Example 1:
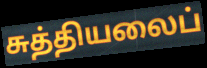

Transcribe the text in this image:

சுத்தியலைப்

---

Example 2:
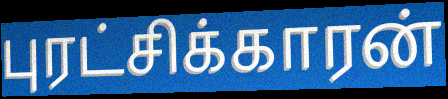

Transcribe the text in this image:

புரட்சிக்காரன்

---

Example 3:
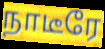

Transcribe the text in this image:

நாடீரே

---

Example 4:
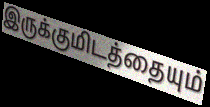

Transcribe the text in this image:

இருக்குமிடத்தையும்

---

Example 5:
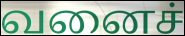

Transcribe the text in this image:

வனைச்